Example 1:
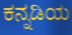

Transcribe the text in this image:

ಕನ್ನಡಿಯ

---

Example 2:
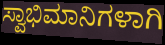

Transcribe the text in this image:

ಸ್ವಾಭಿಮಾನಿಗಳಾಗಿ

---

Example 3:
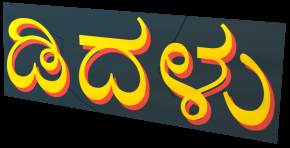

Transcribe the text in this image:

ಡಿದಳು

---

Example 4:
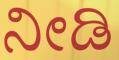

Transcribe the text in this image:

ನೀಡಿ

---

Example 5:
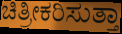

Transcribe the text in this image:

ಚಿತ್ರೀಕರಿಸುತ್ತಾ